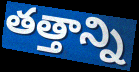
తత్తాన్ని